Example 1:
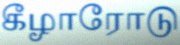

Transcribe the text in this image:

கீழாரோடு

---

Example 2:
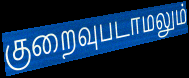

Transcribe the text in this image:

குறைவுபடாமலும்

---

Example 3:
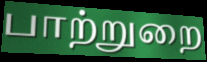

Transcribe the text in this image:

பாற்றுறை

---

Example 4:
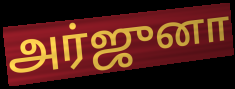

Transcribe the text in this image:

அர்ஜுனா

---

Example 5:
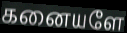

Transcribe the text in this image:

கனையளே